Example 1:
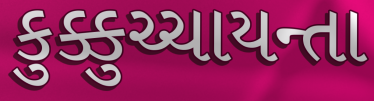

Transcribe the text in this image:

કુક્કુચ્ચાયન્તા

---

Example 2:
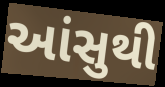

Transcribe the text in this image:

આંસુથી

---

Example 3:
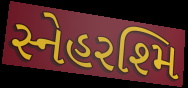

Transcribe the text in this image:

સ્નેહરશ્મિ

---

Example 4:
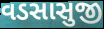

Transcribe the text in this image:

વડસાસુજી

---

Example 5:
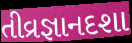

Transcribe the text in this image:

તીવ્રજ્ઞાનદશા